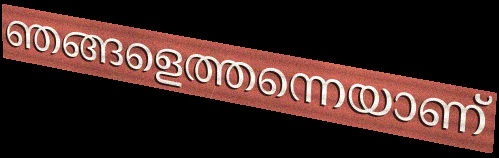
ഞങ്ങളെത്തന്നെയാണ്